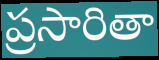
ప్రసారితా